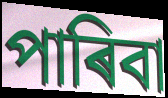
পাৰিবা